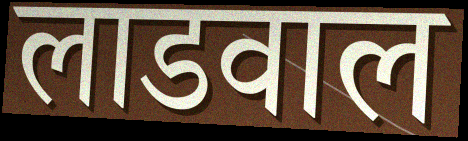
लाडवाल